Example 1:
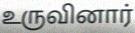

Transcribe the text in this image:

உருவினார்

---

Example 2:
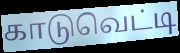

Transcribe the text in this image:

காடுவெட்டி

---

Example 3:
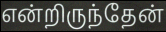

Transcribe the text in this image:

என்றிருந்தேன்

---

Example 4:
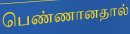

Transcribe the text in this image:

பெண்ணானதால்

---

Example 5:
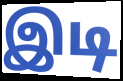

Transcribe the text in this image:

இடி